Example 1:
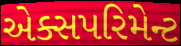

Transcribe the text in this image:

એક્સપરિમેન્ટ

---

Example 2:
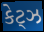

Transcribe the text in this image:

કેટ્ઝ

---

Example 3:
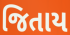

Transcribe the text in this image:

જિતાય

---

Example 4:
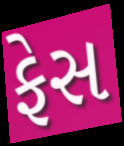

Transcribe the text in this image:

ફેસ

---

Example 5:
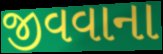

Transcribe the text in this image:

જીવવાના